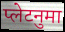
प्लेटनुमा